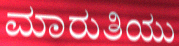
ಮಾರುತಿಯು